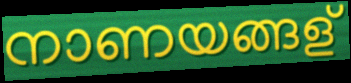
നാണയങ്ങള്